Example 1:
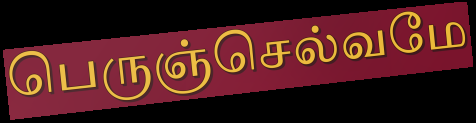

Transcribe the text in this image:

பெருஞ்செல்வமே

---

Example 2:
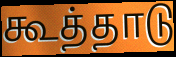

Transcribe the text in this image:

கூத்தாடு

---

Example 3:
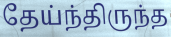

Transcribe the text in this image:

தேய்ந்திருந்த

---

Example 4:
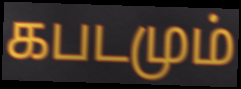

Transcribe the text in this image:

கபடமும்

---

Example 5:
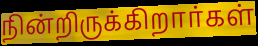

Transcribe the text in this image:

நின்றிருக்கிறார்கள்